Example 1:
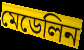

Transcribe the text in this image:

মেডেলিন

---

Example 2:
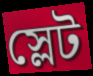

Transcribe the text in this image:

স্লেট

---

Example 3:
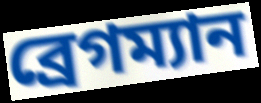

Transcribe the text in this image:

ব্রেগম্যান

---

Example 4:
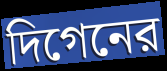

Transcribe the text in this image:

দিগেনের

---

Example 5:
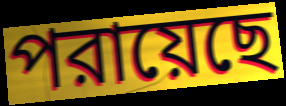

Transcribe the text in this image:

পরায়েছে